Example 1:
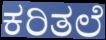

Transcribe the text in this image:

ಕರಿತಲೆ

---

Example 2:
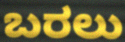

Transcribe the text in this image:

ಬರಲು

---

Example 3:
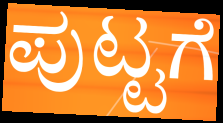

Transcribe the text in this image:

ಪುಟ್ಟಗೆ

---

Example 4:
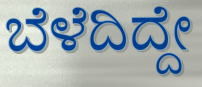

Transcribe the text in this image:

ಬೆಳೆದಿದ್ದೇ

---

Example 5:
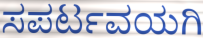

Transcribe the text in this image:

ಸಪರ್ಟವಯಗಿ